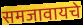
समजावायचे